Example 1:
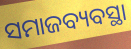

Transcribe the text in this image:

ସମାଜବ୍ୟବସ୍ଥା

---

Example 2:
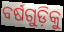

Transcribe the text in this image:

ବର୍ଷଗୁଡ଼ିକୁ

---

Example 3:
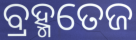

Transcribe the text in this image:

ବ୍ରହ୍ମତେଜ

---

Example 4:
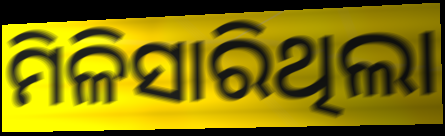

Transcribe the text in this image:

ମିଳିସାରିଥିଲା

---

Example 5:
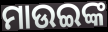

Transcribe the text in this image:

ମାଉଇଙ୍କ